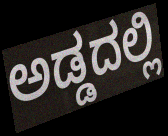
ಅಡ್ಡದಲ್ಲಿ